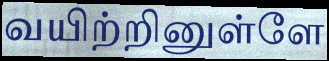
வயிற்றினுள்ளே